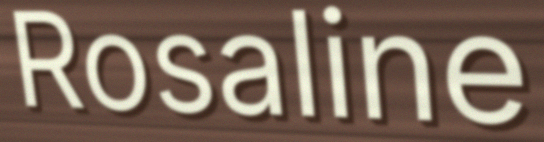
Rosaline